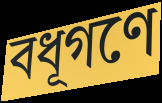
বধূগণে